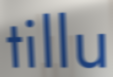
tillu